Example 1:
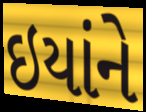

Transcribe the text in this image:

ઇયાંને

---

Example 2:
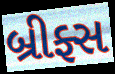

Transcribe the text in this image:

બ્રીફ્સ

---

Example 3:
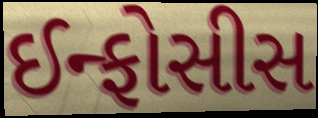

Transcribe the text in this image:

ઈન્ફોસીસ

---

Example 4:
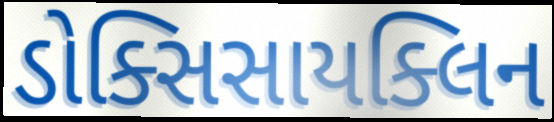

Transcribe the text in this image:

ડોક્સિસાયક્લિન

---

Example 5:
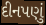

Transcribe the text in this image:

દીનપણું